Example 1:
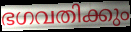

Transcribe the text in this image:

ഭഗവതിക്കും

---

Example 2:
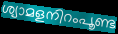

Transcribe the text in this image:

ശ്യാമളനിറംപൂണ്ട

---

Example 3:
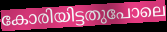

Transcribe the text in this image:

കോരിയിട്ടതുപോലെ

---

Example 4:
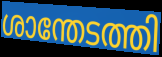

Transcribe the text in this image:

ശാന്തേടത്തി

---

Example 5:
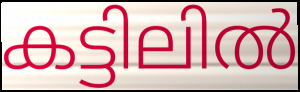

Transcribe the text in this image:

കട്ടിലിൽ